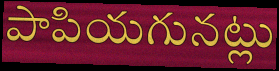
పాపియగునట్లు